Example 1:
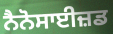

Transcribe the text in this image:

ਨੈਨੋਸਾਈਜ਼ਡ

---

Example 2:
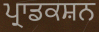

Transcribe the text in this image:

ਪ੍ਰਾਡਕਸ਼ਨ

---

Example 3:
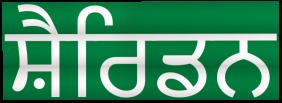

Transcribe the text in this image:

ਸ਼ੈਰਿਡਨ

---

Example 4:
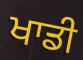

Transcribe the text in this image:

ਖਾਡੀ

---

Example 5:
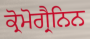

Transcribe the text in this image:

ਕ੍ਰੋਮੋਗ੍ਰੈਨਿਨ